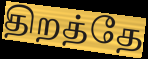
திறத்தே